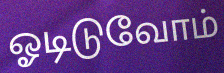
ஓடிடுவோம்